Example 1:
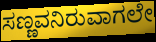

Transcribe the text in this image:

ಸಣ್ಣವನಿರುವಾಗಲೇ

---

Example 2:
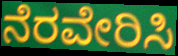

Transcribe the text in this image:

ನೆರವೇರಿಸಿ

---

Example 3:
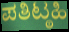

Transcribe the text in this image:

ಪತಿಟ್ಠಹಿ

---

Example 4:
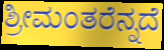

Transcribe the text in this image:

ಶ್ರೀಮಂತರೆನ್ನದೆ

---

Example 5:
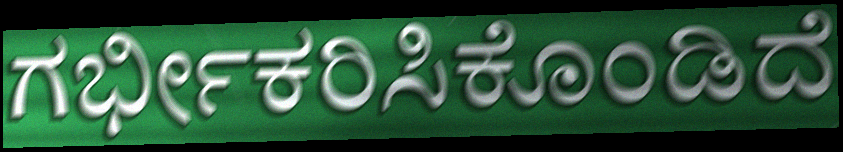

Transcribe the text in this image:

ಗರ್ಭೀಕರಿಸಿಕೊಂಡಿದೆ